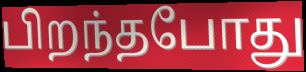
பிறந்தபோது